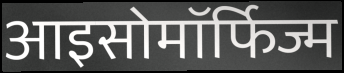
आइसोमॉर्फिज्म